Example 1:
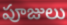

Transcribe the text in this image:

పూజులు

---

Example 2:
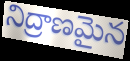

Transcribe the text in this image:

నిద్రాణమైన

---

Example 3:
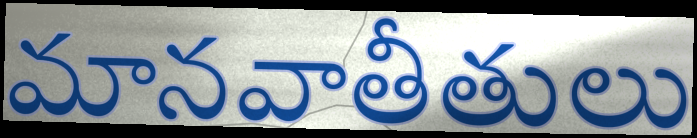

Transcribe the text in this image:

మానవాతీతులు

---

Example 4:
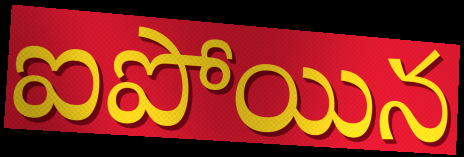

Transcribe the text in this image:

ఐపోయిన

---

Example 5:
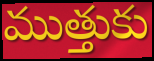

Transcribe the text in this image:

ముత్తుకు